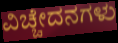
ವಿಚ್ಚೇದನಗಳು